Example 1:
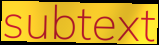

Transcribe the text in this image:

subtext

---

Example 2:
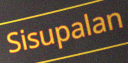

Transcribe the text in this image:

Sisupalan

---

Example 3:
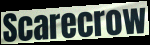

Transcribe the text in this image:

Scarecrow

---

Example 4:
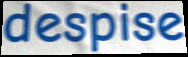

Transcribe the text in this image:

despise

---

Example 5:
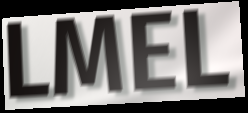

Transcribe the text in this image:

LMEL